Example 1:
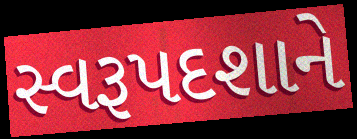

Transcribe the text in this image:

સ્વરૂપદશાને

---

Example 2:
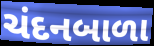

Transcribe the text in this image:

ચંદનબાળા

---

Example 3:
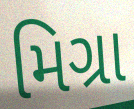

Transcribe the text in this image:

મિગ્રા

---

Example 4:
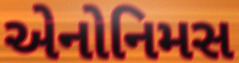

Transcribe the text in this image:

એનોનિમસ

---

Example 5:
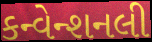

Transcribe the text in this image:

કન્વેન્શનલી